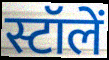
स्टॉलें